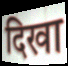
दिखा